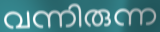
വന്നിരുന്ന